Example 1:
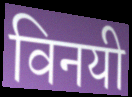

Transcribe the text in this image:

विनयी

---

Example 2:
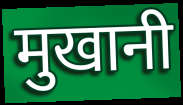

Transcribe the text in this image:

मुखानी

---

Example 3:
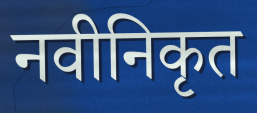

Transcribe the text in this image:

नवीनिकृत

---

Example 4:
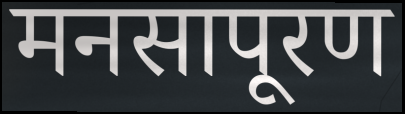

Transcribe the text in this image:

मनसापूरण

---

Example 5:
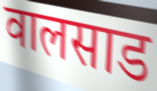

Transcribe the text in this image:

वालसाड